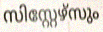
സിസ്റ്റേഴ്സും